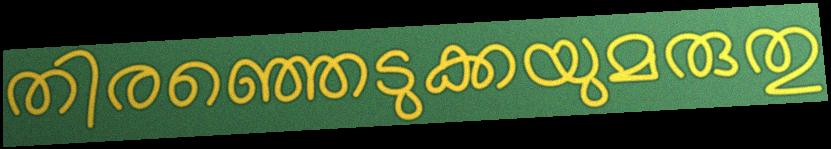
തിരഞ്ഞെടുക്കയുമരുതു